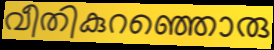
വീതികുറഞ്ഞൊരു